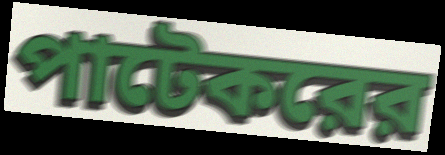
পাটেকরের